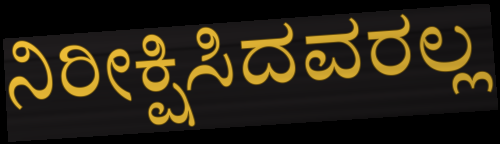
ನಿರೀಕ್ಷಿಸಿದವರಲ್ಲ